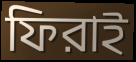
ফিরাই